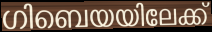
ഗിബെയയിലേക്ക്